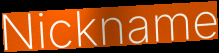
Nickname